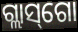
ଗ୍ଲାସ୍‌ଗୋ